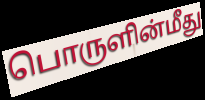
பொருளின்மீது